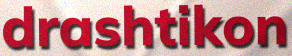
drashtikon